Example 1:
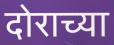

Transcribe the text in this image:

दोराच्या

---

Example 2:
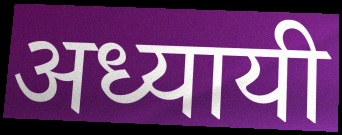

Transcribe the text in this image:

अध्यायी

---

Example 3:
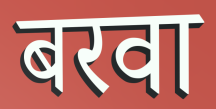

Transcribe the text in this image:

बरवा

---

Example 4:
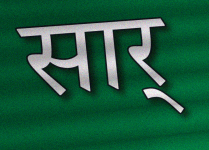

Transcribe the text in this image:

सार्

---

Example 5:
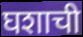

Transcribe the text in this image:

घशाची